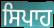
ਸਿਪਾਹ